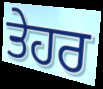
ਤੇਹਰ